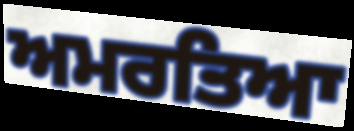
ਅਮਰਤਿਆ